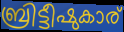
ബ്രിട്ടീഷുകാര്